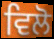
ਵਿਲੋ